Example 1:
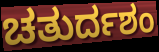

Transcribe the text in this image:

ಚತುರ್ದಶಂ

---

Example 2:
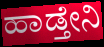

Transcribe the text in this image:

ಹಾಡ್ತೇನಿ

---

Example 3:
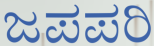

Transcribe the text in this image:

ಜಪಪರಿ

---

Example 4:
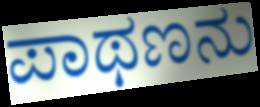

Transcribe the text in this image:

ಪಾಥಣನು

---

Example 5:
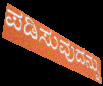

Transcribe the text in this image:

ಪಡಿಸುವುದನ್ನು